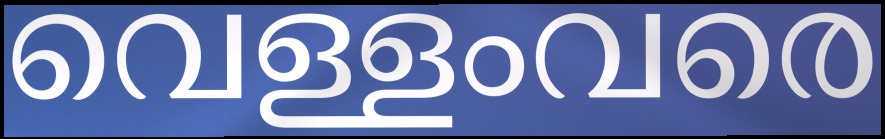
വെള്ളംവരെ